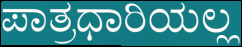
ಪಾತ್ರಧಾರಿಯಲ್ಲ